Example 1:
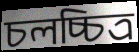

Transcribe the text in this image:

চলচ্চিত্ৰ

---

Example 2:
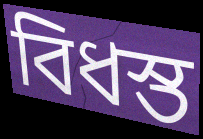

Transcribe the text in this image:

বিধস্ত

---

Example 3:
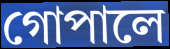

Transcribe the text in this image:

গোপালে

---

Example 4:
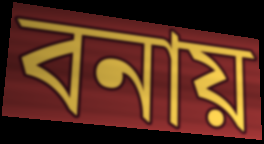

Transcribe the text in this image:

বনায়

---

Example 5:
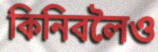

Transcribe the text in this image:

কিনিবলৈও